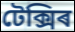
টেক্সিৰ